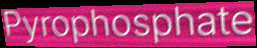
Pyrophosphate